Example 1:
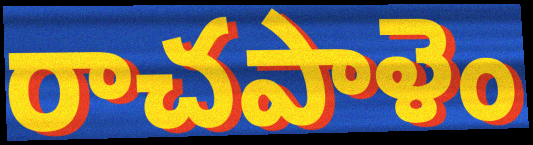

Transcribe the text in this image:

రాచపాళెం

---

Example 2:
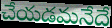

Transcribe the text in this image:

చేయడమనేదే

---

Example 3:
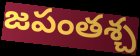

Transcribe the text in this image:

జపంతశ్చ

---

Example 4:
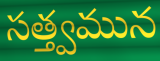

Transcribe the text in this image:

సత్త్వమున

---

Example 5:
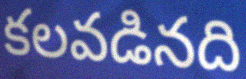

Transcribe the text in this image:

కలవడినది